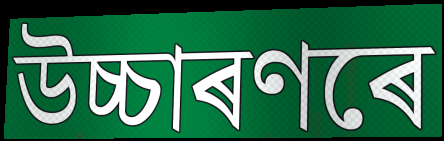
উচ্চাৰণৰে